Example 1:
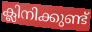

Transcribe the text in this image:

ക്ലിനിക്കുണ്ട്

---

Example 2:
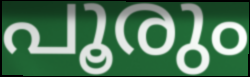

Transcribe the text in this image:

പൂരും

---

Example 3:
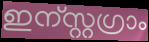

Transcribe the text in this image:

ഇന്സ്റ്റഗ്രാം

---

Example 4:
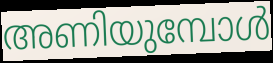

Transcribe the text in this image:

അണിയുമ്പോൾ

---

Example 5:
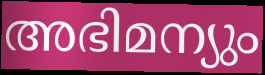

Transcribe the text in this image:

അഭിമന്യും